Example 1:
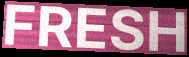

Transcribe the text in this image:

FRESH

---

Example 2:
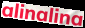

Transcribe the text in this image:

alinalina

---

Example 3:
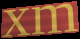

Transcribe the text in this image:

xm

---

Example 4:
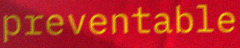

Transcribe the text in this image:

preventable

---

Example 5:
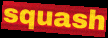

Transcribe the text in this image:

squash